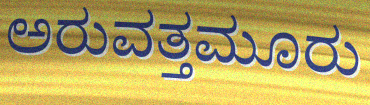
ಅರುವತ್ತಮೂರು